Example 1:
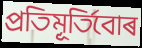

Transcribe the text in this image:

প্ৰতিমূৰ্তিবোৰ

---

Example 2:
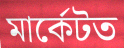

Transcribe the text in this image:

মাৰ্কেটত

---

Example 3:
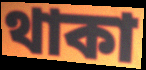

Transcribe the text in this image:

থাকা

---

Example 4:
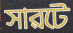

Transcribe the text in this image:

সাৱটে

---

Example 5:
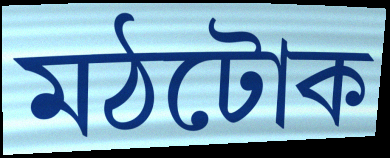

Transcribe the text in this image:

মঠটোক